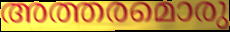
അത്തരമൊരു